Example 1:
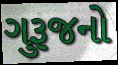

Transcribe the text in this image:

ગુરૂજનો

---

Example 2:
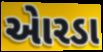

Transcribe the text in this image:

એારડા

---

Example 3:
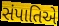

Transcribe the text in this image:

સંપાતિએ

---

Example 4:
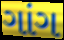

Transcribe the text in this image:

ગાંગ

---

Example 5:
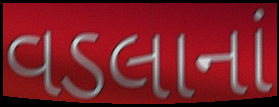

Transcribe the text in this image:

વડલાનાં